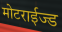
मोटराईज्ड